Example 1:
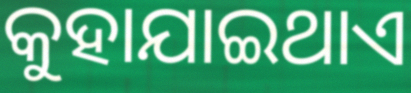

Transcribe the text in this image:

କୁହାଯାଇଥାଏ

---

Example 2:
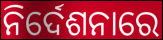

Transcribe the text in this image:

ନିର୍ଦେଶନାରେ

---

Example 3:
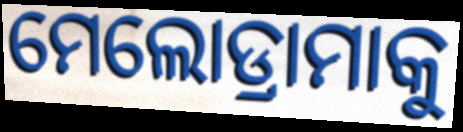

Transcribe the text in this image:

ମେଲୋଡ୍ରାମାକୁ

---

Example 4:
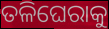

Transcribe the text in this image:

ତଳିଘେରାକୁ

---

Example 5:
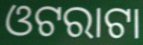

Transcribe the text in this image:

ଓଟରାଟା